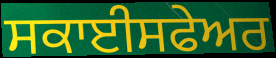
ਸਕਾਈਸਫੇਅਰ